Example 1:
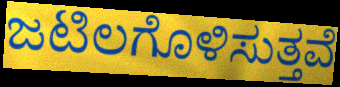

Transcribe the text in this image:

ಜಟಿಲಗೊಳಿಸುತ್ತವೆ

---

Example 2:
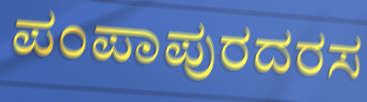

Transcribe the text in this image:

ಪಂಪಾಪುರದರಸ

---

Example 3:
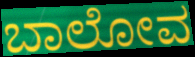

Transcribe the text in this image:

ಬಾಲೋವ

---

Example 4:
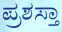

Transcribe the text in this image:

ಪ್ರಶಸ್ತಾ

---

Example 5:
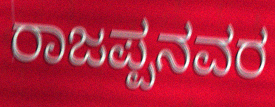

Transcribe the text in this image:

ರಾಜಪ್ಪನವರ